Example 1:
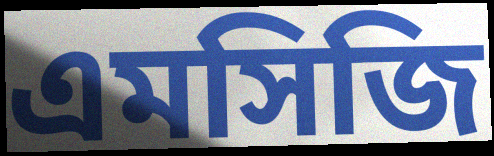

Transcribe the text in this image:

এমসিজি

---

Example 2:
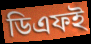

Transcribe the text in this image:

ডিএফই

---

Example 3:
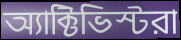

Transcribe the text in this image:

অ্যাক্টিভিস্টরা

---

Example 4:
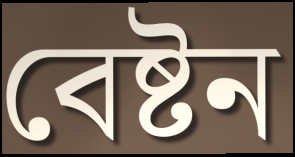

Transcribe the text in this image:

বেষ্টন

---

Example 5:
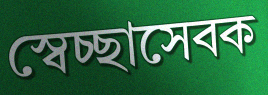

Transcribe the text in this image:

স্বেচ্ছাসেবক